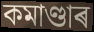
কমাণ্ডাৰ